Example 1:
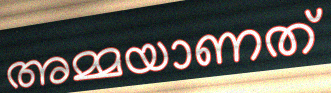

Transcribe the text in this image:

അമ്മയാണത്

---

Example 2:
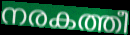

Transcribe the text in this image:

നരകത്തീ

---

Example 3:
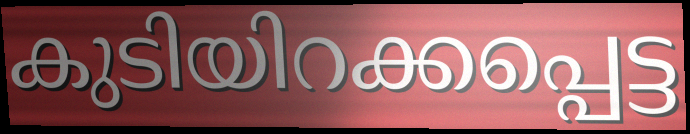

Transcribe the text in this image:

കുടിയിറക്കപ്പെട്ട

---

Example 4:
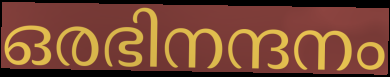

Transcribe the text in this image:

ഒരഭിനന്ദനം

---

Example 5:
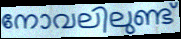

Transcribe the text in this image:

നോവലിലുണ്ട്